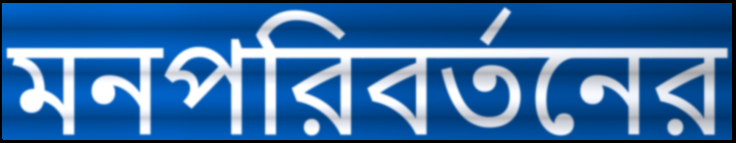
মনপরিবর্তনের